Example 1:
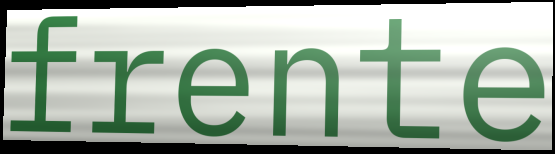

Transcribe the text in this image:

frente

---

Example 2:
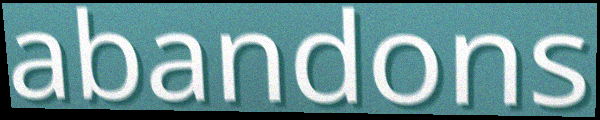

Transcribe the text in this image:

abandons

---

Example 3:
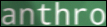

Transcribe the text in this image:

anthro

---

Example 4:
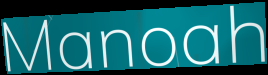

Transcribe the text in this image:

Manoah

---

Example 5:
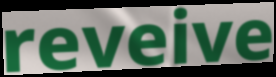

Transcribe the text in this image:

reveive